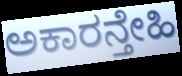
ಅಕಾರನ್ತೇಹಿ